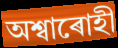
অশ্বাৰোহী